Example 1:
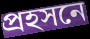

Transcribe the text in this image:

প্রহসনে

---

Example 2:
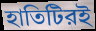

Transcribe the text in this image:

হাতিটিরই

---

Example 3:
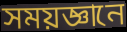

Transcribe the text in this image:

সময়জ্ঞানে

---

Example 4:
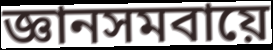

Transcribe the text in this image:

জ্ঞানসমবায়ে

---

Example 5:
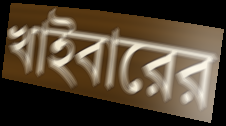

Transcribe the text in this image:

খাইবারের